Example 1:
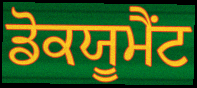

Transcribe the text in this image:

ਡੋਕਯੂਮੈਂਟ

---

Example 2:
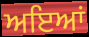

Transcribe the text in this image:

ਅਇਆਂ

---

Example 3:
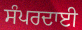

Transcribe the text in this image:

ਸੰਪਰਦਾਈ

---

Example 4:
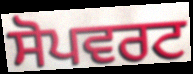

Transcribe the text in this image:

ਸੋਪਵਰਟ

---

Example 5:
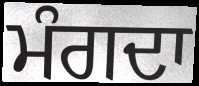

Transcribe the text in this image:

ਮੰਗਦਾ